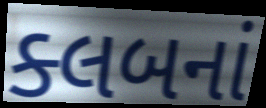
ક્લબનાં